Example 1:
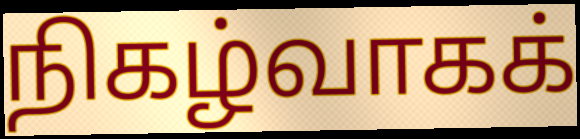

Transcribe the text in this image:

நிகழ்வாகக்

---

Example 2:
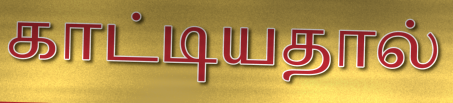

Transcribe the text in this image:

காட்டியதால்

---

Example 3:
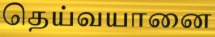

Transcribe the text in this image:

தெய்வயானை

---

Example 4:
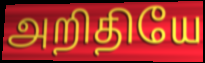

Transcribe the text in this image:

அறிதியே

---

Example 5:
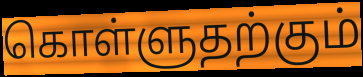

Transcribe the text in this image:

கொள்ளுதற்கும்